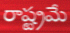
రాష్ట్రమే